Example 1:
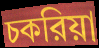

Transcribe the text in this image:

চকরিয়া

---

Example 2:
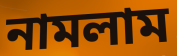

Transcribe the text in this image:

নামলাম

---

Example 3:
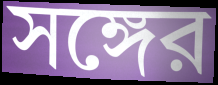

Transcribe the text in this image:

সঙ্গের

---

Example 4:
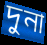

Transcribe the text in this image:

দুনা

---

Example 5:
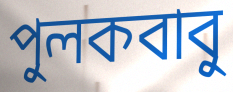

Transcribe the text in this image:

পুলকবাবু